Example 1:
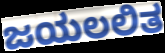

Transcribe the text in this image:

ಜಯಲಲಿತ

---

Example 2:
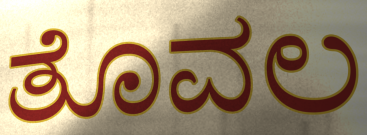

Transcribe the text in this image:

ತೊವಲ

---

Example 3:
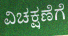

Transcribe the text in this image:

ವಿಚಕ್ಷಣೆಗೆ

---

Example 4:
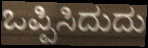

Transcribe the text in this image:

ಒಪ್ಪಿಸಿದುದು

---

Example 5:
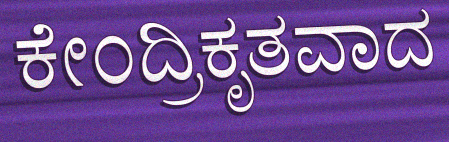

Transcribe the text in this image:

ಕೇಂದ್ರಿಕೃತವಾದ